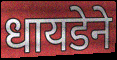
धायडेने